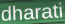
dharati